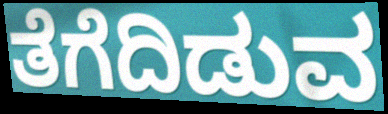
ತೆಗೆದಿಡುವ